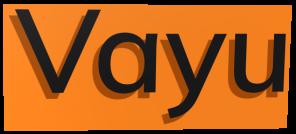
Vayu